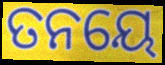
ତନୟେ